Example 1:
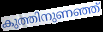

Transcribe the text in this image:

കുത്തിനുണഞ്ഞ്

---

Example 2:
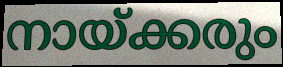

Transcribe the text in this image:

നായ്ക്കരും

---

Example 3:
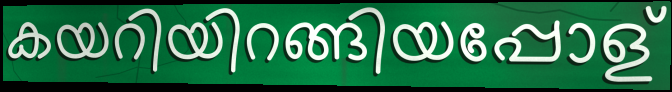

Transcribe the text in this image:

കയറിയിറങ്ങിയപ്പോള്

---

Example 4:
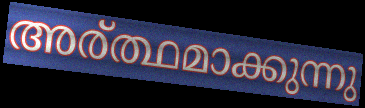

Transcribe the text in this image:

അര്ത്ഥമാക്കുന്നു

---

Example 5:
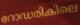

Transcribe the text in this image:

റോഡരികിലെ